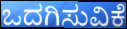
ಒದಗಿಸುವಿಕೆ